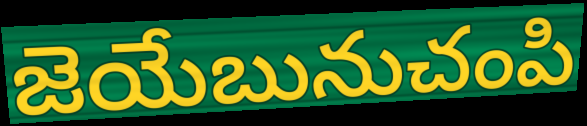
జెయేబునుచంపి